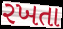
રખતા